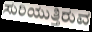
ಸುರಿಯುತ್ತಿರುವ